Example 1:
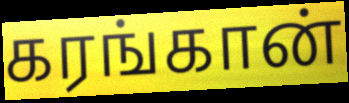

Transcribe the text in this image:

கரங்கான்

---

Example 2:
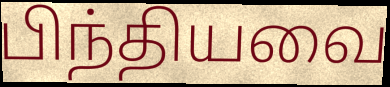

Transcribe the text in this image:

பிந்தியவை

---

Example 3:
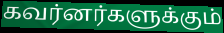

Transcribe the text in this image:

கவர்னர்களுக்கும்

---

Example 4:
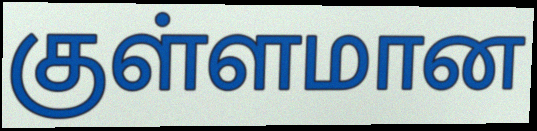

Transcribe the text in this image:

குள்ளமான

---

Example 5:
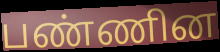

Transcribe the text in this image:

பண்ணின